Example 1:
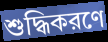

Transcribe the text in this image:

শুদ্ধিকরণে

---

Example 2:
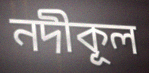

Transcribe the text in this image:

নদীকূল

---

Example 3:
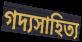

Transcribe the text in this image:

গদ্যসাহিত্য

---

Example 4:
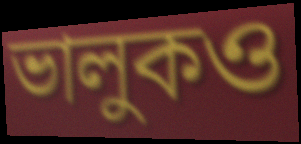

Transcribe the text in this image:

ভালুকও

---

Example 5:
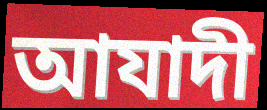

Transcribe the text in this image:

আযাদী